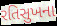
રતિસુખના